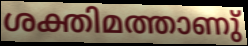
ശക്തിമത്താണു്